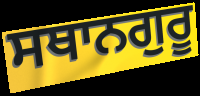
ਸਥਾਨਗੁਰੂ